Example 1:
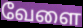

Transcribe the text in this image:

வேளை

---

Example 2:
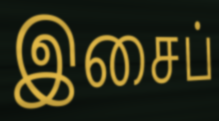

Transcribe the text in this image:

இசைப்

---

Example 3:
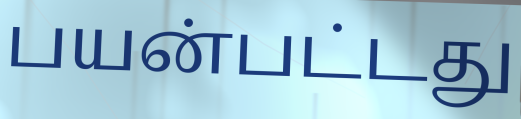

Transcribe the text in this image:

பயன்பட்டது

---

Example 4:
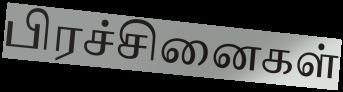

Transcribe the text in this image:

பிரச்சினைகள்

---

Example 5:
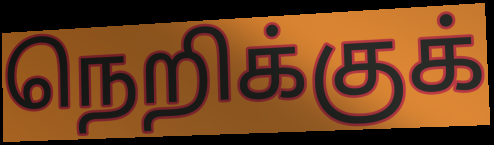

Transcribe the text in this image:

நெறிக்குக்